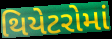
થિયેટરોમાં